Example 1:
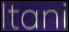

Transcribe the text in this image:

Itani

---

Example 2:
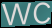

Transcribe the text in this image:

wc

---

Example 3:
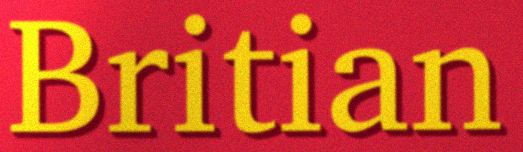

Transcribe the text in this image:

Britian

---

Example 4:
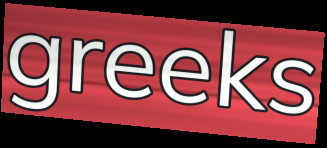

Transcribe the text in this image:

greeks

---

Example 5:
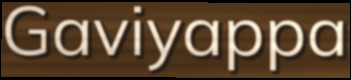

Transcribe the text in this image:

Gaviyappa